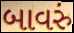
બાવરું